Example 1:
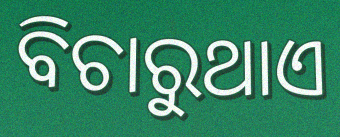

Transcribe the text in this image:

ବିଚାରୁଥାଏ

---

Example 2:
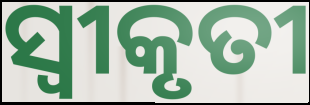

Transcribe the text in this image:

ସ୍ୱୀକୃତୀ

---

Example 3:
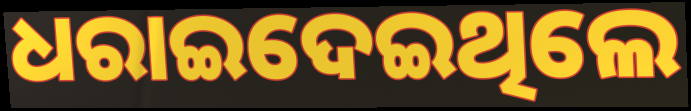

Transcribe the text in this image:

ଧରାଇଦେଇଥିଲେ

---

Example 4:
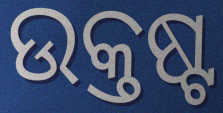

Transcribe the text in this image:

ଉକ୍ତଷ୍ଟ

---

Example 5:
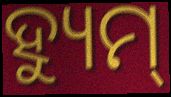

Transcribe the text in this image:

ହ୍ୟୁମ୍